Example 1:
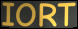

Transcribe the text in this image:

IORT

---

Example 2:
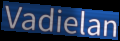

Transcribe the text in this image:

Vadielan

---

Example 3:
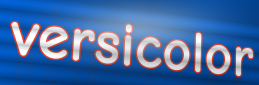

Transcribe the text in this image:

versicolor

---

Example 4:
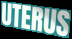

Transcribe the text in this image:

UTERUS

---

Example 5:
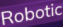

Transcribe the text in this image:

Robotic